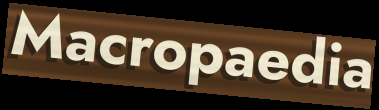
Macropaedia